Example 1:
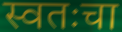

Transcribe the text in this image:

स्वतःचा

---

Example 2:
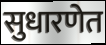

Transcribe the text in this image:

सुधारणेत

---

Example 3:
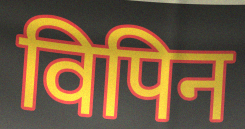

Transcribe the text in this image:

विपिन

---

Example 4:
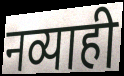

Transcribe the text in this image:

नव्याही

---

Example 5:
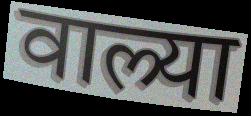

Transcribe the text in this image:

वाल्या